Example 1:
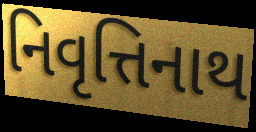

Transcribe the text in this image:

નિવૃત્તિનાથ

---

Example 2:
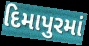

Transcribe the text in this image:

દિમાપુરમાં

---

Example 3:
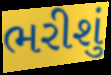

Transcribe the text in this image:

ભરીશું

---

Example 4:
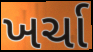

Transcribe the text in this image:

ખર્ચા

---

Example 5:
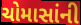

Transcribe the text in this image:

ચોમાસાંની